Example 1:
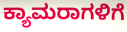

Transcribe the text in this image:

ಕ್ಯಾಮರಾಗಳಿಗೆ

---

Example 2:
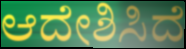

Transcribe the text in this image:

ಆದೇಶಿಸಿದೆ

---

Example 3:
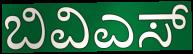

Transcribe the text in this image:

ಬಿವಿಎಸ್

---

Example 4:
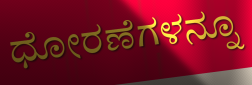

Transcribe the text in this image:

ಧೋರಣೆಗಳನ್ನೂ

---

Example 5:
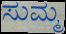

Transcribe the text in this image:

ಸುಮ್ಮ